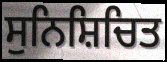
ਸੁਨਿਸ਼ਿਚਿਤ